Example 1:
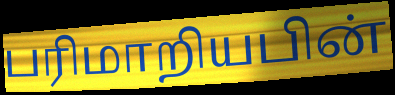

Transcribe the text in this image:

பரிமாறியபின்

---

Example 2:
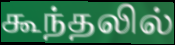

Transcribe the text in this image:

கூந்தலில்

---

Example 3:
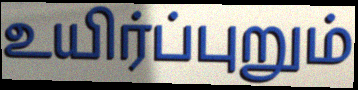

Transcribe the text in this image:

உயிர்ப்புறும்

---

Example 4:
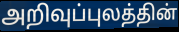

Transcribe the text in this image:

அறிவுப்புலத்தின்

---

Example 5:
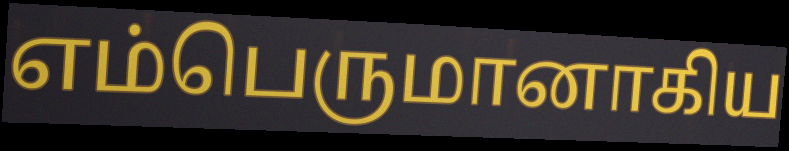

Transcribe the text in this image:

எம்பெருமானாகிய